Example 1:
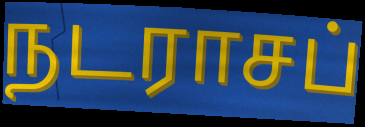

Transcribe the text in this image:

நடராசப்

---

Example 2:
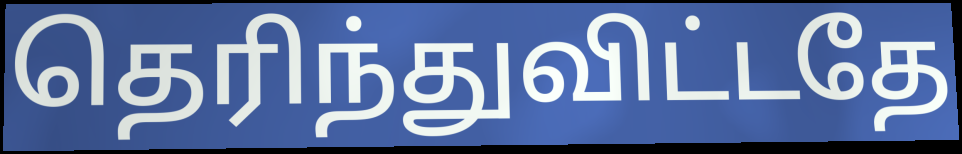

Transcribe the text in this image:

தெரிந்துவிட்டதே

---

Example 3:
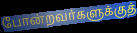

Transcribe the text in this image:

போன்றவர்களுக்குத்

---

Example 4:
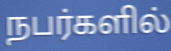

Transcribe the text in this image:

நபர்களில்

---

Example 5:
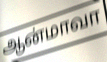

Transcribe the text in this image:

ஆன்மாவா